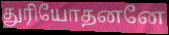
துரியோதனனே